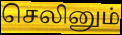
செலினும்